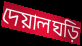
দেয়ালঘড়ি